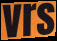
vrs